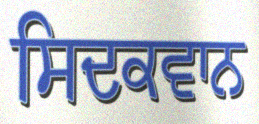
ਸਿਦਕਵਾਨ